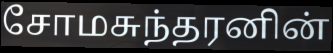
சோமசுந்தரனின்